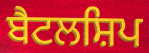
ਬੈਟਲਸ਼ਿਪ